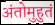
अंतोमुहुतं